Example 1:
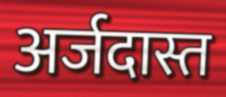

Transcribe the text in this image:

अर्जदास्त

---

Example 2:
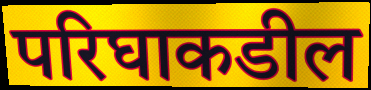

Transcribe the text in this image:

परिघाकडील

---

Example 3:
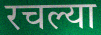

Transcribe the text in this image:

रचल्या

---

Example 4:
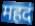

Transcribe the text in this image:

महदं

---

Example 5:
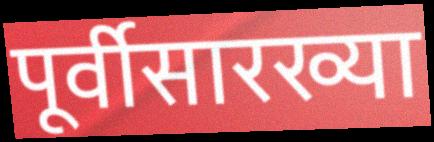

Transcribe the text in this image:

पूर्वीसारख्या